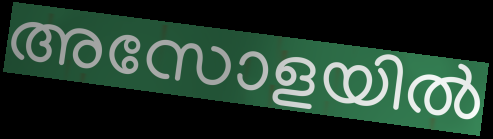
അസോളയിൽ